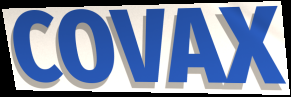
COVAX